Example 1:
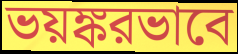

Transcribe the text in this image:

ভয়ঙ্করভাবে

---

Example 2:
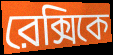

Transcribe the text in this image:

রেক্সিকে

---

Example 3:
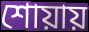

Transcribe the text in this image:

শোয়ায়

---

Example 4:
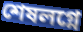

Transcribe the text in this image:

শেষলগ্নে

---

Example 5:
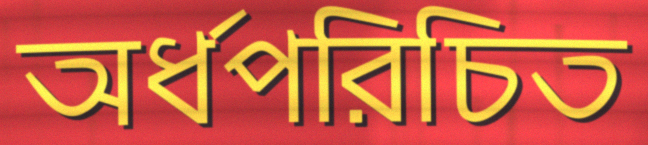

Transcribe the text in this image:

অর্ধপরিচিত